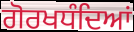
ਗੋਰਖਧੰਦਿਆਂ